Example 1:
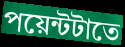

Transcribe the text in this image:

পয়েন্টটাতে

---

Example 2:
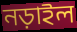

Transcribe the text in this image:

নড়াইল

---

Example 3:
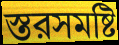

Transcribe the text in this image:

স্তরসমষ্টি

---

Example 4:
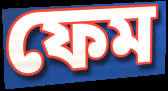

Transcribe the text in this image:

ফেম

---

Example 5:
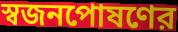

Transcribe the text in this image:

স্বজনপোষণের